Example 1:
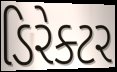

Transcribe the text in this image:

ડિરેક્ટર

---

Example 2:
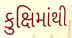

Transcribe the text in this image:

કુક્ષિમાંથી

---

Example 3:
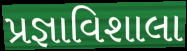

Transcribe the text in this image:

પ્રજ્ઞાવિશાલા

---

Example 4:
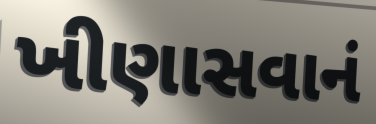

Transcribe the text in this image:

ખીણાસવાનં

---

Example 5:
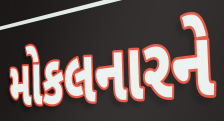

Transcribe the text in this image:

મોકલનારને